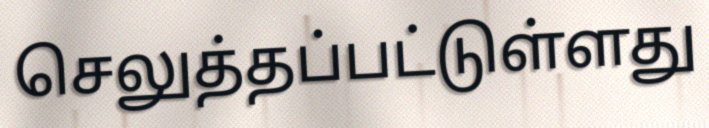
செலுத்தப்பட்டுள்ளது